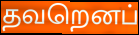
தவறெனப்